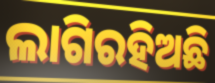
ଲାଗିରହିଅଛି